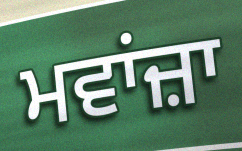
ਮਵਾਂਜ਼ਾ